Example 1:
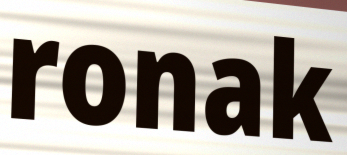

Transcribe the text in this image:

ronak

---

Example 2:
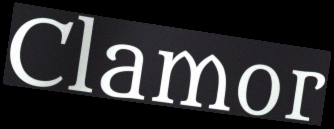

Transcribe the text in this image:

Clamor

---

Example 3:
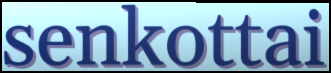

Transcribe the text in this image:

senkottai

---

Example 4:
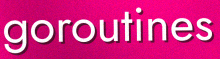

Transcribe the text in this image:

goroutines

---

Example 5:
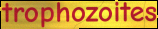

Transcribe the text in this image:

trophozoites